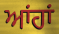
ਆਂਹਾਂ